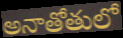
అనాతోతులో